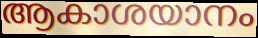
ആകാശയാനം